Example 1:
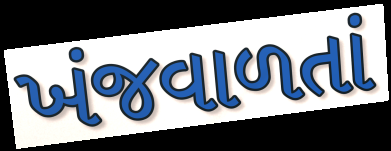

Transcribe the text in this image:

ખંજવાળતાં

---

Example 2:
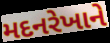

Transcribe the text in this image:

મદનરેખાને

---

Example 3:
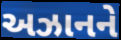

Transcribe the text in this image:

અઝાનને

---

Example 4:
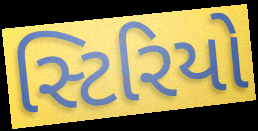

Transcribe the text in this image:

સ્ટિરિયો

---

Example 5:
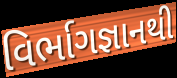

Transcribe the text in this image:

વિર્ભાગજ્ઞાનથી